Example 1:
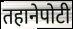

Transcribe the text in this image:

तहानेपोटी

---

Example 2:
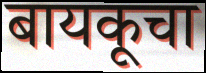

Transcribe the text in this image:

बायकूचा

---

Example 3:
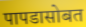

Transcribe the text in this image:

पापडासोबत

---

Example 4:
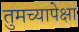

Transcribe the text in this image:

तुमच्यापेक्षा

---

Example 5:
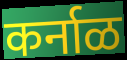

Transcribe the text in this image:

कर्नाळ